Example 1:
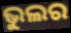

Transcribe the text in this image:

ଭୁଲର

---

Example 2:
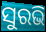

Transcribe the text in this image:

ସୁରଭି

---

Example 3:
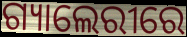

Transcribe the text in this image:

ଗ୍ୟାଲେରୀରେ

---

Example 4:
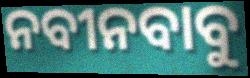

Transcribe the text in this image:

ନବୀନବାବୁ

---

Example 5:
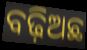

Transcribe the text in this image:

ବଢ଼ିଅଛ